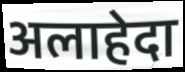
अलाहेदा